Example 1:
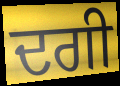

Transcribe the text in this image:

ਦਗੀ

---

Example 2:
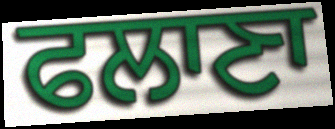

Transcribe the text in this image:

ਫਲਾਣਾ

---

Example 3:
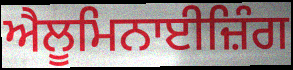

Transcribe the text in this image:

ਐਲੂਮਿਨਾਈਜ਼ਿੰਗ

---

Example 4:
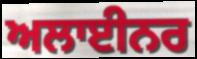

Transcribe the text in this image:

ਅਲਾਈਨਰ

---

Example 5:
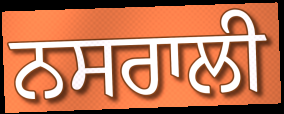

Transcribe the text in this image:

ਨਸਰਾਲੀ